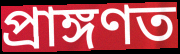
প্ৰাঙ্গণত